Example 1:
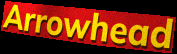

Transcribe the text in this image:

Arrowhead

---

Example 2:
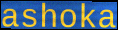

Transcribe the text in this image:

ashoka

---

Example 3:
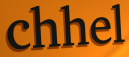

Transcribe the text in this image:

chhel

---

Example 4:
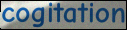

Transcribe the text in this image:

cogitation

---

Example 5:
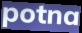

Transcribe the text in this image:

potna